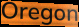
Oregon